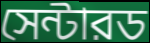
সেন্টারড